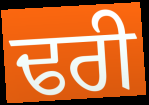
ਢਰੀ